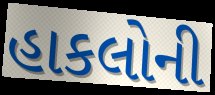
હાકલોની